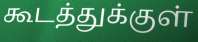
கூடத்துக்குள்